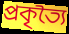
প্রকৃত্যৈ